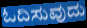
ಓದಿಸುವುದು